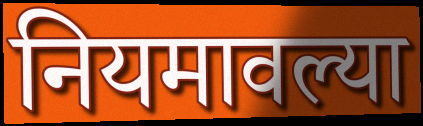
नियमावल्या